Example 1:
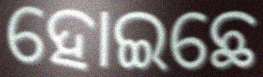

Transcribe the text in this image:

ହୋଇଛେ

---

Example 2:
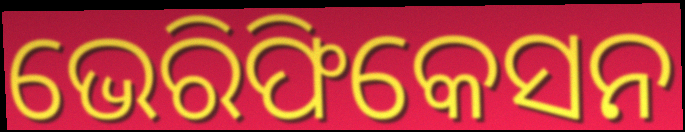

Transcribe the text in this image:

ଭେରିଫିକେସନ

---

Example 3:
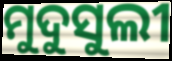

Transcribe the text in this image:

ମୁଦୁସୁଲୀ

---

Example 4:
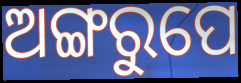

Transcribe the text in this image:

ଅଙ୍ଗରୁପେ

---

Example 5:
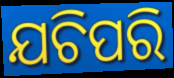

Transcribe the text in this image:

ଯଚିପରି